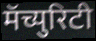
मॅच्युरिटी